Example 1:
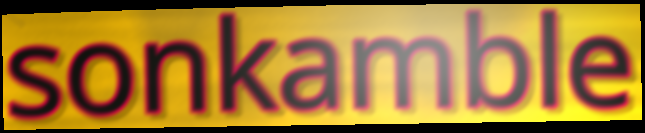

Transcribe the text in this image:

sonkamble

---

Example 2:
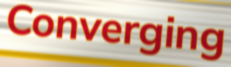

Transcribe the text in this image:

Converging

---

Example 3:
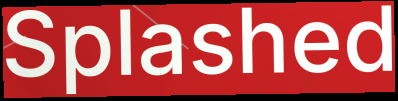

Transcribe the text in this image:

Splashed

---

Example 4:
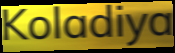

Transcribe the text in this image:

Koladiya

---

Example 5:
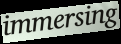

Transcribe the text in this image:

immersing